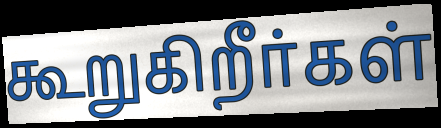
கூறுகிறீர்கள்